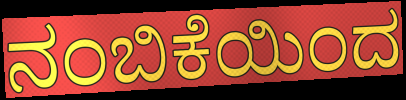
ನಂಬಿಕೆಯಿಂದ